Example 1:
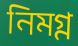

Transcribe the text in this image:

নিমগ্ন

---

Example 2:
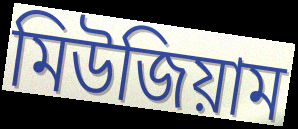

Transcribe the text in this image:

মিউজিয়াম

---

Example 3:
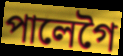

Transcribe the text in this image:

পালেগৈ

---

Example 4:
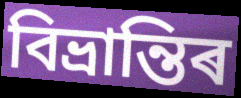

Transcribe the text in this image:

বিভ্ৰান্তিৰ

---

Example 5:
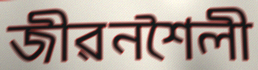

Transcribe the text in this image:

জীৱনশৈলী